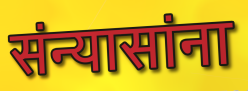
संन्यासांना